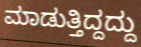
ಮಾಡುತ್ತಿದ್ದದ್ದು